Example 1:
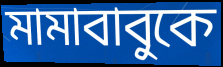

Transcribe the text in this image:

মামাবাবুকে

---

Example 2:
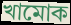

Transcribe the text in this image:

খামোক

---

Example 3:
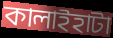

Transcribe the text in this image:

কালাইহাটা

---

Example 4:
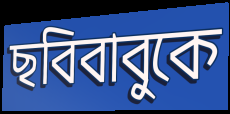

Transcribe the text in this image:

ছবিবাবুকে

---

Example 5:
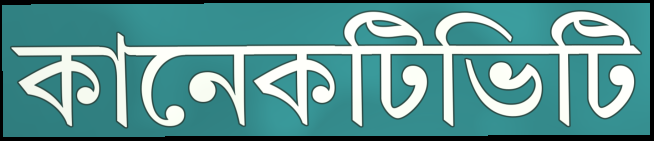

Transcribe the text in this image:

কানেকটিভিটি